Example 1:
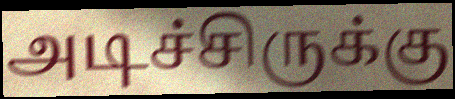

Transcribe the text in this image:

அடிச்சிருக்கு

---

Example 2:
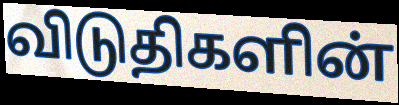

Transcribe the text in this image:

விடுதிகளின்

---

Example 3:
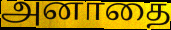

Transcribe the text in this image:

அனாதை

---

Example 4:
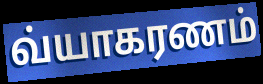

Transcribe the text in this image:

வ்யாகரணம்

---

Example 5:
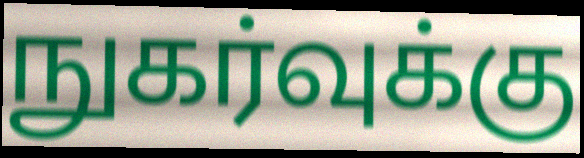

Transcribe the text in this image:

நுகர்வுக்கு